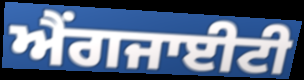
ਐਂਗਜਾਈਟੀ